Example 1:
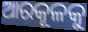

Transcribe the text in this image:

ଆରକୂଳକୁ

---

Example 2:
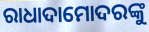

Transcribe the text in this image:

ରାଧାଦାମୋଦରଙ୍କୁ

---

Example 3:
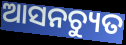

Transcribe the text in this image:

ଆସନଚ୍ୟୁତ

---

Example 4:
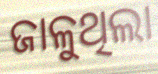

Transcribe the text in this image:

ଜାଳୁଥିଲା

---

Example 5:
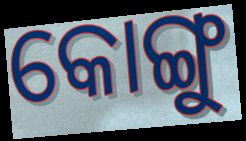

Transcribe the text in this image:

କୋଙ୍ଗୁ